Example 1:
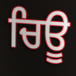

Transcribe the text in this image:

ਚਿਊ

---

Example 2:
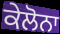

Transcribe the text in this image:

ਕੇਲੋਨਾ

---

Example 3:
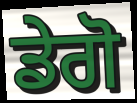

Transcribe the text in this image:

ਡੇਗੋ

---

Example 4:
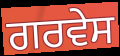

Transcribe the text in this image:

ਗਰਵੇਸ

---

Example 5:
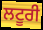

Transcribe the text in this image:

ਲਟੂਰੀ